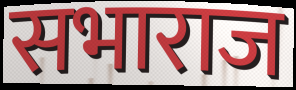
सभाराज